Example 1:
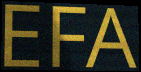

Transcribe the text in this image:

EFA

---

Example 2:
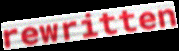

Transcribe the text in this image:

rewritten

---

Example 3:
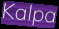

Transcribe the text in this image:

Kalpa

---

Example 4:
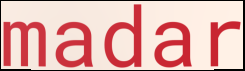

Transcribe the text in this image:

madar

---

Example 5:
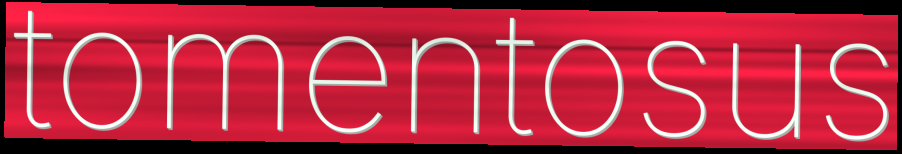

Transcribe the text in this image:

tomentosus